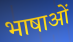
भाषाओें